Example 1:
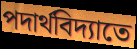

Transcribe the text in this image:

পদার্থবিদ্যাতে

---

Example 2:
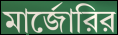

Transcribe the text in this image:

মার্জোরির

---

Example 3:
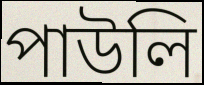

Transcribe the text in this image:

পাউলি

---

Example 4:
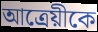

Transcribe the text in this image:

আত্রেয়ীকে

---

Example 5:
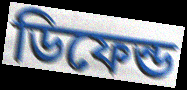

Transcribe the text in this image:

ডিফেন্ড